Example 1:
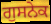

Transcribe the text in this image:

ਗੁਸਨੇਕ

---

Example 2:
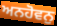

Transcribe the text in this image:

ਅਨਹੋਵਨੁ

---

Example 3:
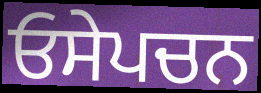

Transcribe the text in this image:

ਓਸੇਪਚਨ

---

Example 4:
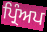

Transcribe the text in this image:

ਪ੍ਰਿੰਅਪ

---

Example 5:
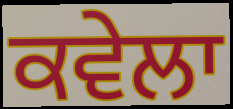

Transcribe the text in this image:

ਕਵੇਲਾ